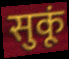
सुकूं